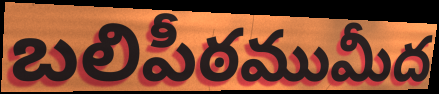
బలిపీఠముమీద